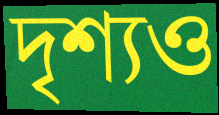
দৃশ্যও